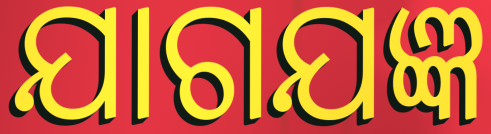
ଯାଗଯଜ୍ଞ